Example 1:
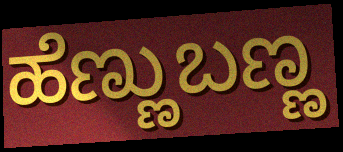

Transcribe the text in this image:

ಹೆಣ್ಣುಬಣ್ಣ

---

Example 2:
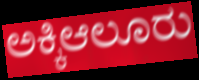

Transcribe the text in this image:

ಅಕ್ಕಿಆಲೂರು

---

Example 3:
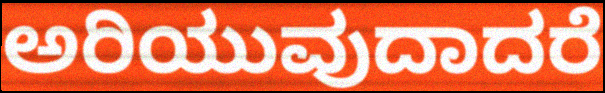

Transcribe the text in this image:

ಅರಿಯುವುದಾದರೆ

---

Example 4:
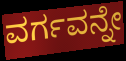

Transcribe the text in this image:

ವರ್ಗವನ್ನೇ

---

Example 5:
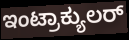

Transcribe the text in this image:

ಇಂಟ್ರಾಕ್ಯುಲರ್